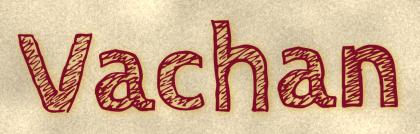
Vachan